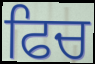
ਫਿਚ